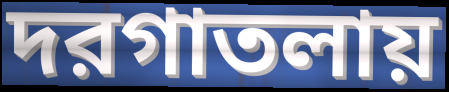
দরগাতলায়